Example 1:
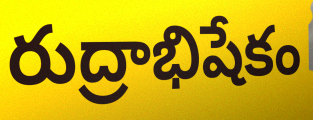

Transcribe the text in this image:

రుద్రాభిషేకం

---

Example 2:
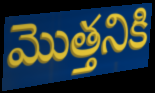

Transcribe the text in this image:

మొత్తనికి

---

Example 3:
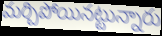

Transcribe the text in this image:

మర్చిపోయినట్టున్నారు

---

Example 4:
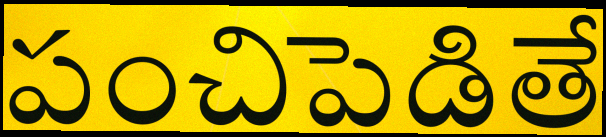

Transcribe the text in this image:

పంచిపెడితే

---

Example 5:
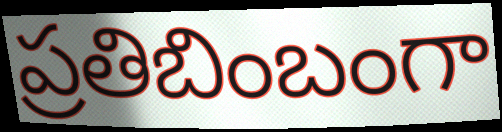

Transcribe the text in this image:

ప్రతిబింబంగా